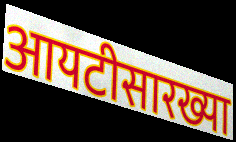
आयटीसारख्या